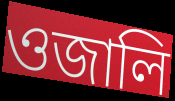
ওজালি